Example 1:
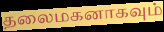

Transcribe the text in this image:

தலைமகனாகவும்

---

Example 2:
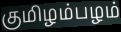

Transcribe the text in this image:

குமிழம்பழம்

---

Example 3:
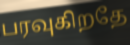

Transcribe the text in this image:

பரவுகிறதே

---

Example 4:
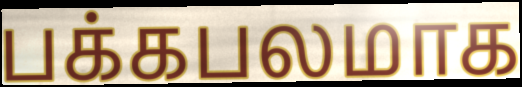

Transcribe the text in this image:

பக்கபலமாக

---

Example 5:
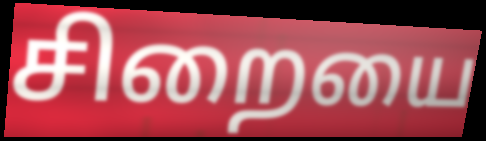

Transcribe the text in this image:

சிறையை